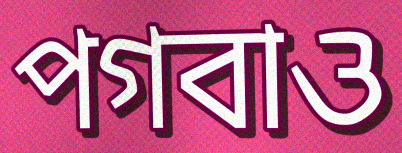
পগবাও